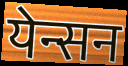
येन्सन